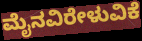
ಮೈನವಿರೇಳುವಿಕೆ